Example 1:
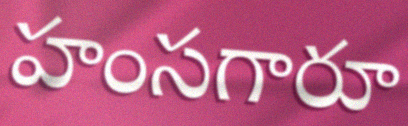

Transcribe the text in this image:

హంసగారూ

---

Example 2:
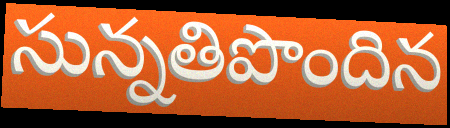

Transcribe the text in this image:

సున్నతిపొందిన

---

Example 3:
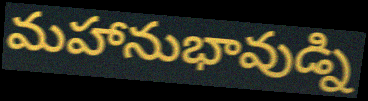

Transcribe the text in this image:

మహానుభావుడ్ని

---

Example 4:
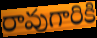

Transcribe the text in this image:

రావుగారికి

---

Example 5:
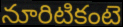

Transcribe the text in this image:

నూరిటికంటె